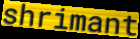
shrimant